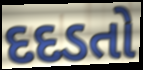
દદડતો